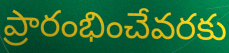
ప్రారంభించేవరకు